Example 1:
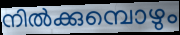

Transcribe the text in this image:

നിൽക്കുമ്പൊഴും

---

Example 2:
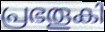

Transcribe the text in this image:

പ്രഭതൂകി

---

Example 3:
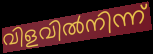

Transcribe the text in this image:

വിളവിൽനിന്ന്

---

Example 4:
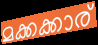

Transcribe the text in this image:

മക്കക്കാര്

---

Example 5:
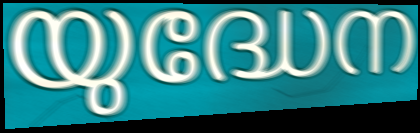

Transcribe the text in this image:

യുദ്ധേന